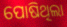
ପୋଷିଥିଲା